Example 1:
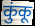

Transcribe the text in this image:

कुंकू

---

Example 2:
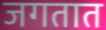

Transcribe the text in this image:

जगतात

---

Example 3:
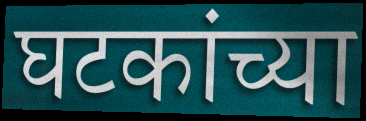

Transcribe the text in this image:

घटकांच्या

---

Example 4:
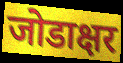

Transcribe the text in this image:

जोडाक्षर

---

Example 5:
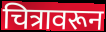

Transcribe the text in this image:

चित्रावरून